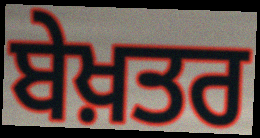
ਬੇਖ਼ਤਰ